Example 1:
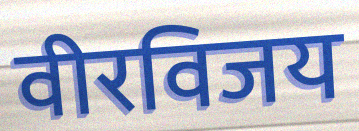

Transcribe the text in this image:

वीरविजय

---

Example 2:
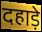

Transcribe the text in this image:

दहाड़े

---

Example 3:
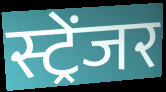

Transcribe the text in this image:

स्ट्रेंजर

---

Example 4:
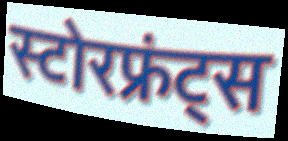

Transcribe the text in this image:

स्टोरफ्रंट्स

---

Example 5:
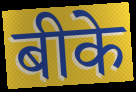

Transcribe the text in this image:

बीके